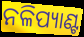
ନଳିପ୍ୟାଣ୍ଟ